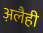
अ़लैही